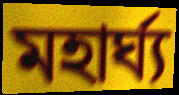
মহার্ঘ্য